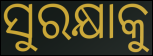
ସୁରକ୍ଷାକୁ